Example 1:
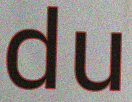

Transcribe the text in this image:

du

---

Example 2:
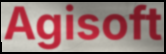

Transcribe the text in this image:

Agisoft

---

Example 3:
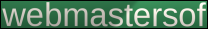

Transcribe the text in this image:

webmastersof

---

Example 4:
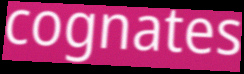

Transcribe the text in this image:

cognates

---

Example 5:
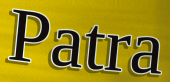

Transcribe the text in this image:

Patra